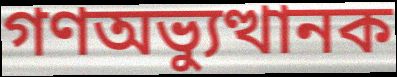
গণঅভ্যুত্থানক